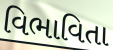
વિભાવિતા